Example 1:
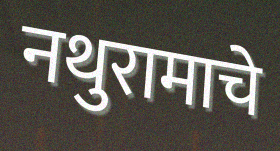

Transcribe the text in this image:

नथुरामाचे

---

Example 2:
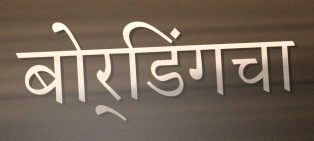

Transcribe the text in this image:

बोर्डिंगचा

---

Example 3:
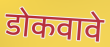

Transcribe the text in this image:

डोकवावे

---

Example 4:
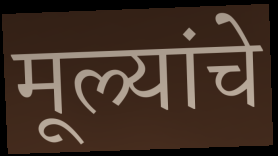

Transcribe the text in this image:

मूल्यांचे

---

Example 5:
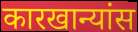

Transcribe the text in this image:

कारखान्यांस